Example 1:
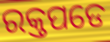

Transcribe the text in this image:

ରକ୍ତପଡେ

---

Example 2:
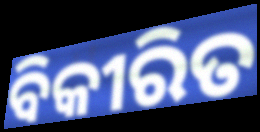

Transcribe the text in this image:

ବିକୀରିତ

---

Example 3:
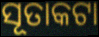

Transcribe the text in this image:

ସୂତାକଟା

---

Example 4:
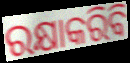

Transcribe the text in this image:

ରକ୍ଷାକରିବି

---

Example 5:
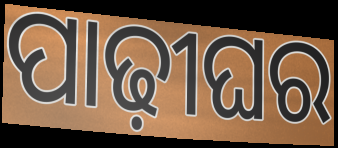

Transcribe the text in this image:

ପାଢ଼ୀଘର